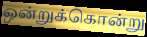
ஒன்றுக்கொன்று